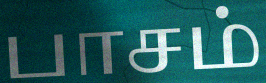
பாசம்